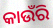
କାଉଁରି